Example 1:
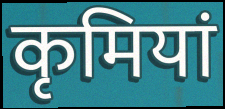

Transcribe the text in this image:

कृमियां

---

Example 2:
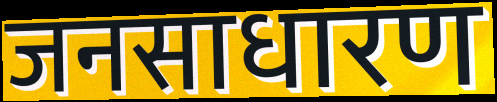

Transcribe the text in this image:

जनसाधारण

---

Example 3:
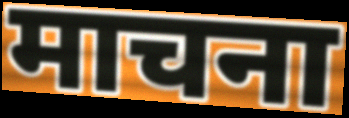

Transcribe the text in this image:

माचना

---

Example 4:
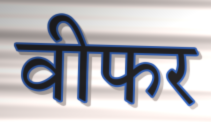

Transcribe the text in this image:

वीफर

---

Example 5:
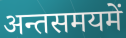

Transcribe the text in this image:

अन्तसमयमें